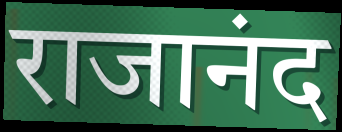
राजानंद